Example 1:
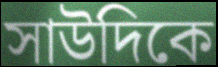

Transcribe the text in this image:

সাউদিকে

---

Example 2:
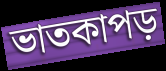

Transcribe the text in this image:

ভাতকাপড়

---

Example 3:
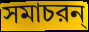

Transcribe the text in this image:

সমাচরন্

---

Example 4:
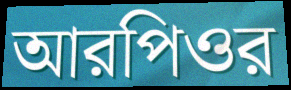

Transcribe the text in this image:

আরপিওর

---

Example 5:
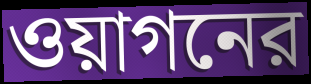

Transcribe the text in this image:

ওয়াগনের